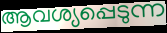
ആവശ്യപ്പെടുന്ന